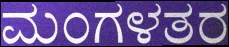
ಮಂಗಳತರ